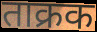
ताक्रक